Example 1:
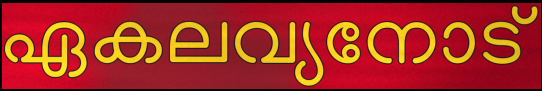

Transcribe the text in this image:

ഏകലവ്യനോട്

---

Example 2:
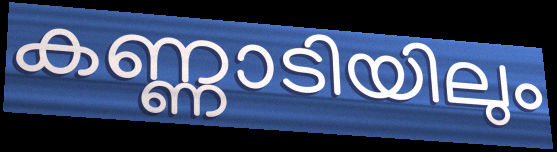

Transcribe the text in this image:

കണ്ണാടിയിലും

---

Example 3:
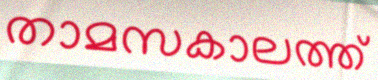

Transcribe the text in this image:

താമസകാലത്ത്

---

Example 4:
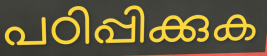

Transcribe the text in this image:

പഠിപ്പിക്കുക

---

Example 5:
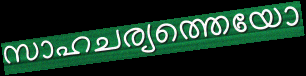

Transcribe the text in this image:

സാഹചര്യത്തെയോ